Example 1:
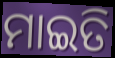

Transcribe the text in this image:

ମାଇତି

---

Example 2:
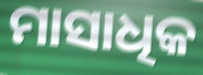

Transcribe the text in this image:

ମାସାଧିକ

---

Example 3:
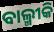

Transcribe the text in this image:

ବାଲ୍ମୀକି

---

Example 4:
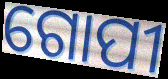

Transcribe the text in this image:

ଗୋପୀ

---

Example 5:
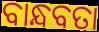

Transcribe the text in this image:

ବାନ୍ଧବତା